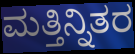
ಮತ್ತಿನ್ನಿತರ